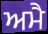
ਅਮੈ